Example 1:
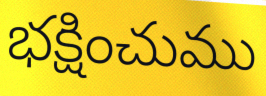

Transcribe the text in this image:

భక్షించుము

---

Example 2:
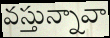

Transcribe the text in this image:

వస్తున్నావా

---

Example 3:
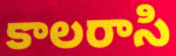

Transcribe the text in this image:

కాలరాసి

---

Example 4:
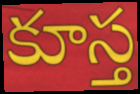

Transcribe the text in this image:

కూస్త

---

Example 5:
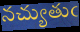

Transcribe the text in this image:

నచ్యుతుఁ